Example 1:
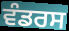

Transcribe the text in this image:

ਵੰਡਰਸ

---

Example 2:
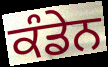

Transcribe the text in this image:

ਕੰਡੇਨ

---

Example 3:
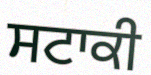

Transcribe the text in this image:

ਸਟਾਕੀ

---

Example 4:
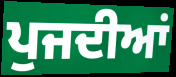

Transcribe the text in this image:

ਪੁਜਦੀਆਂ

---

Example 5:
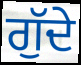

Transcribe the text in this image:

ਗੁੱਦੇ